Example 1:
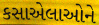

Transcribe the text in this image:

કસાએલાઓને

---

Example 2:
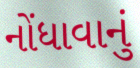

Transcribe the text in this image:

નોંધાવાનું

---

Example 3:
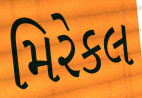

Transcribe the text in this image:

મિરેકલ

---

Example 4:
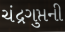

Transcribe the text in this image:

ચંદ્રગુપ્તની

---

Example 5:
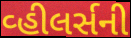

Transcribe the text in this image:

વ્હીલર્સની